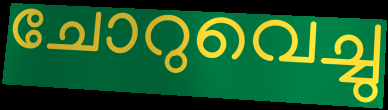
ചോറുവെച്ചു